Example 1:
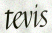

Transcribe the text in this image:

tevis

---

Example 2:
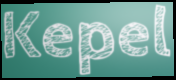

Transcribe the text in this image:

Kepel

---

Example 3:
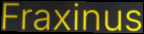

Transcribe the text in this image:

Fraxinus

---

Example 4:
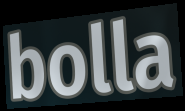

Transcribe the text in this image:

bolla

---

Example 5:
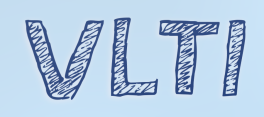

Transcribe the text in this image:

VLTI